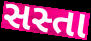
સસ્તા